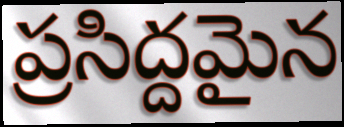
ప్రసిద్దమైన